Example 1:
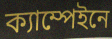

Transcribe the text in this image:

ক্যাম্পেইনে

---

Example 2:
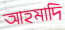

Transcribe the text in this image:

আহমাদি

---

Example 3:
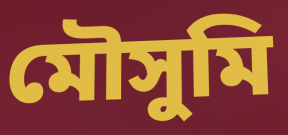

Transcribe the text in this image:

মৌসুমি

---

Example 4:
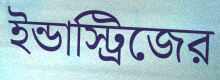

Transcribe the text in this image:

ইন্ডাস্ট্রিজের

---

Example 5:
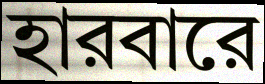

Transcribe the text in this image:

হারবারে